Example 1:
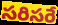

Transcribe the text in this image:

సరిసరే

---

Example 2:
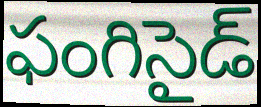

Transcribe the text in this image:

ఫంగిసైడ్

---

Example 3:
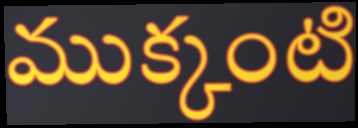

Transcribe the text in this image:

ముక్కంటి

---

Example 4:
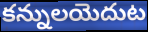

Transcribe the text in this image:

కన్నులయెదుట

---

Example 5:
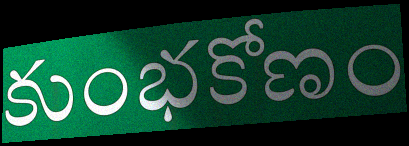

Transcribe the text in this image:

కుంభకోణం